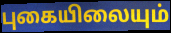
புகையிலையும்